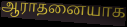
ஆராதனையாக